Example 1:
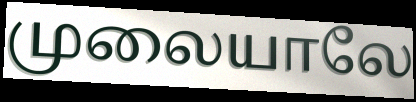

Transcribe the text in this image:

முலையாலே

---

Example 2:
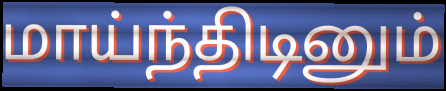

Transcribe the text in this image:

மாய்ந்திடினும்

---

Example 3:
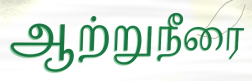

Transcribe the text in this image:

ஆற்றுநீரை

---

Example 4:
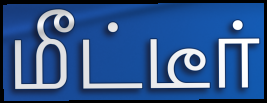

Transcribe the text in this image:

மீட்டீர்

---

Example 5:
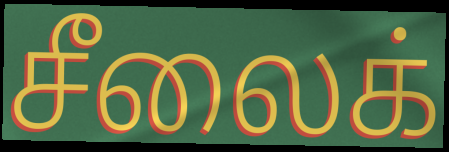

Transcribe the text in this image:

சீலைக்